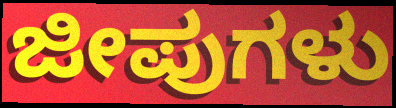
ಜೀಪುಗಳು